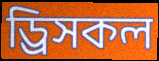
ড্রিসকল